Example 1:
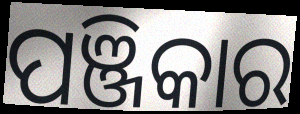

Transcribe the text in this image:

ପଞ୍ଜିକାର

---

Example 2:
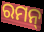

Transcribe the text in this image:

ରମନ୍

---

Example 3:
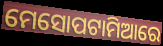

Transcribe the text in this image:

ମେସୋପଟାମିଆରେ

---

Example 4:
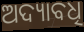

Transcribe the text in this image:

ଅଦ୍ୟାବଧି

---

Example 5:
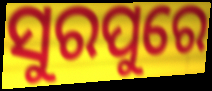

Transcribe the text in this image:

ସୁରପୁରେ